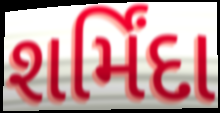
શર્મિંદા